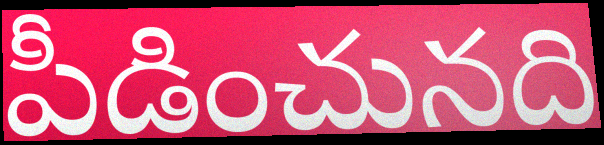
పీడించునది